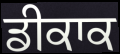
ਡੀਕਾਕ